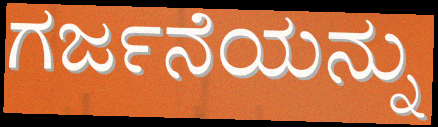
ಗರ್ಜನೆಯನ್ನು